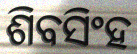
ଶିବସିଂହ